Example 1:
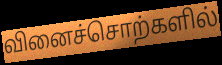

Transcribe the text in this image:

வினைச்சொற்களில்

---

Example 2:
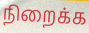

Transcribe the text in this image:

நிறைக்க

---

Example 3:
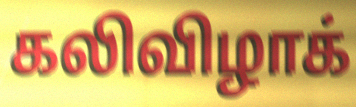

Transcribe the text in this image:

கலிவிழாக்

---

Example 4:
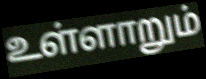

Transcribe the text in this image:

உள்ளாறும்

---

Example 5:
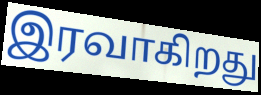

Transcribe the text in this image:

இரவாகிறது